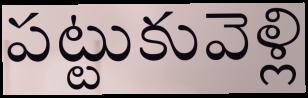
పట్టుకువెళ్లి